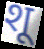
शू